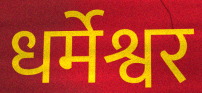
धर्मेश्वर